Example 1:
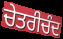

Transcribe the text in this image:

ਚੇਤਰੀਚੰਦ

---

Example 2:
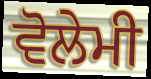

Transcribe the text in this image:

ਵੋਲੇਮੀ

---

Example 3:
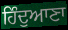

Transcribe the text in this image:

ਹਿੰਦੁਆਣਾ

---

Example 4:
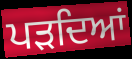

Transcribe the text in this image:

ਪੜਦਿਆਂ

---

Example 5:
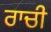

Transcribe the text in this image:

ਰਾਚੀ